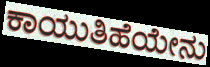
ಕಾಯುತಿಹೆಯೇನು